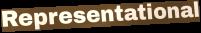
Representational